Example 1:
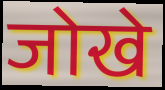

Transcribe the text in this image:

जोखे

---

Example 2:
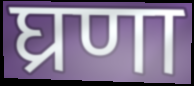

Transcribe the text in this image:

घ्रणा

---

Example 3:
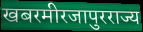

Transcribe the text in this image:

खबरमीरजापुरराज्य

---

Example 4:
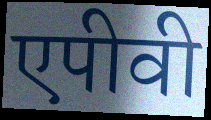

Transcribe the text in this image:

एपीवी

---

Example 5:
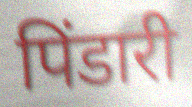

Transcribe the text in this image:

पिंडारी